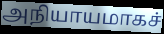
அநியாயமாகச்